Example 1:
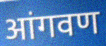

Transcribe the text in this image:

आंगवण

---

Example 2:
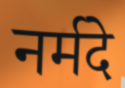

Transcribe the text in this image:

नर्मदे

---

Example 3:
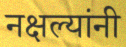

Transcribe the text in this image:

नक्षल्यांनी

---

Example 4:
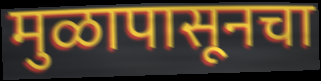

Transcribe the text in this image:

मुळापासूनचा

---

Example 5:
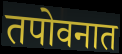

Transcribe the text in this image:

तपोवनात